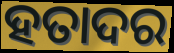
ହତାଦର